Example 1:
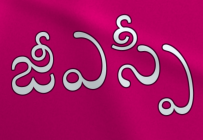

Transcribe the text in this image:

జీఎస్పీ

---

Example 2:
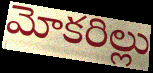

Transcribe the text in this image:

మోకరిల్లు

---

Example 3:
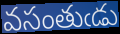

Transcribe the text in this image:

వసంతుఁడు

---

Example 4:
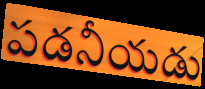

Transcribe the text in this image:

పడనీయడు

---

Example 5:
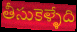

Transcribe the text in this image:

తీసుకెళ్ళేది